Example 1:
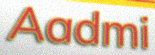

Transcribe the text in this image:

Aadmi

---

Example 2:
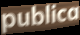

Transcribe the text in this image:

publica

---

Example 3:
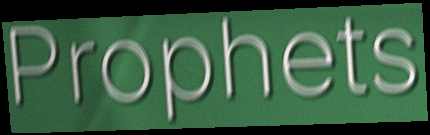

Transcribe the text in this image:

Prophets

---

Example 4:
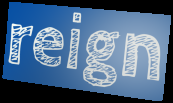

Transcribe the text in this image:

reign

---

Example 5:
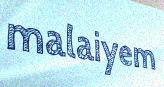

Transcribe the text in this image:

malaiyem